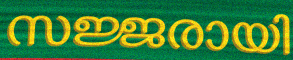
സജ്ജരായി